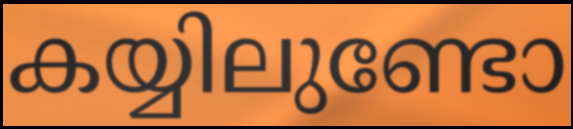
കയ്യിലുണ്ടോ